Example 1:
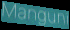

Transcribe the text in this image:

Manguni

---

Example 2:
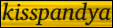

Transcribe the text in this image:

kisspandya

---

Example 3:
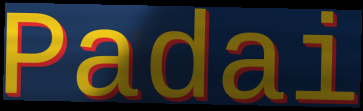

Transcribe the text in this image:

Padai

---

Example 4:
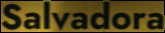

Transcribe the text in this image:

Salvadora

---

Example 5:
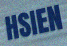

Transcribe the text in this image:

HSIEN